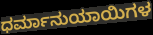
ಧರ್ಮಾನುಯಾಯಿಗಳ